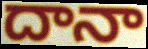
దానా